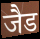
जैड